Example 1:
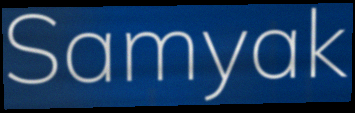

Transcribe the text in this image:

Samyak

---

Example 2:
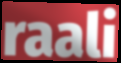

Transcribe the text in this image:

raali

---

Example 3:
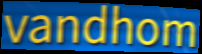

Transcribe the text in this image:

vandhom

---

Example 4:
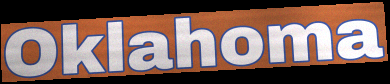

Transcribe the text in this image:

Oklahoma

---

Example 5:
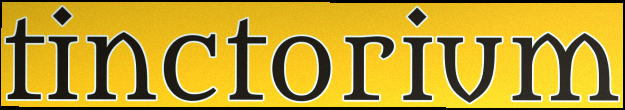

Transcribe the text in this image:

tinctorium